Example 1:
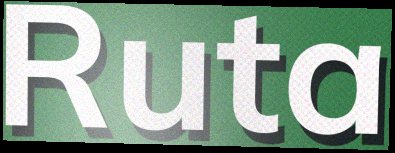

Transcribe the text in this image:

Ruta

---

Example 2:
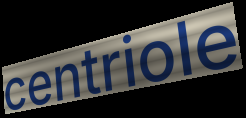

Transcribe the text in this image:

centriole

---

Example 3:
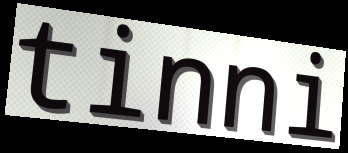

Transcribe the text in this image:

tinni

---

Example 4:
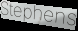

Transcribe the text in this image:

Stephens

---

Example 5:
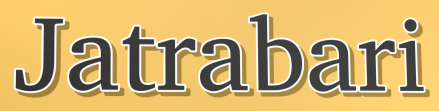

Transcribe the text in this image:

Jatrabari